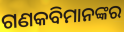
ଗଣକବିମାନଙ୍କର